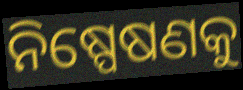
ନିଷ୍ପେଷଣକୁ